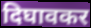
दिघावकर